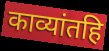
काव्यांतहि